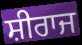
ਸ਼ੀਰਾਜ